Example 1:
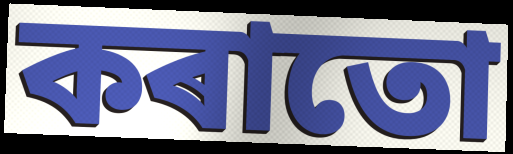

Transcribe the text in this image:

কৰাতো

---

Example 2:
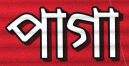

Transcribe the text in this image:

পাগা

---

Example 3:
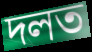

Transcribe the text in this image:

দলত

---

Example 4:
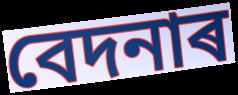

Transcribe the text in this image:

বেদনাৰ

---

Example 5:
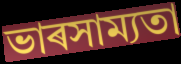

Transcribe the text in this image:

ভাৰসাম্যতা